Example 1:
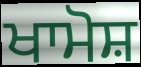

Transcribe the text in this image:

ਖਾਮੋਸ਼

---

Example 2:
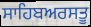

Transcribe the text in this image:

ਸਾਹਿਬਅਰਸਤੂ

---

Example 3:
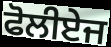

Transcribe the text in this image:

ਫੋਲੀਏਜ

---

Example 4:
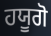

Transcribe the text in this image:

ਹਯੂਗੋ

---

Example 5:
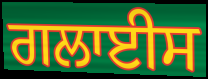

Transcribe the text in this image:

ਗਲਾਈਸ